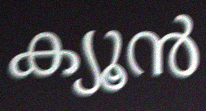
ക്യൂൻ